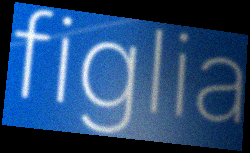
figlia